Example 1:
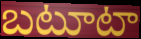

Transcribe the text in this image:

బటూటా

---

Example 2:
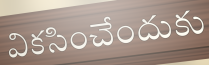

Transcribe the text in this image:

వికసించేందుకు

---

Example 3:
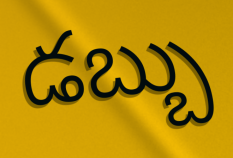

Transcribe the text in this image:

డబ్బు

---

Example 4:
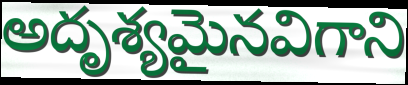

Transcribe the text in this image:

అదృశ్యమైనవిగాని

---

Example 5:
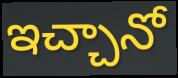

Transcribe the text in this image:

ఇచ్చానో